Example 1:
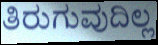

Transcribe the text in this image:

ತಿರುಗುವುದಿಲ್ಲ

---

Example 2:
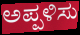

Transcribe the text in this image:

ಅಪ್ಪಳಿಸು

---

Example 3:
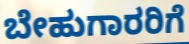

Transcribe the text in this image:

ಬೇಹುಗಾರರಿಗೆ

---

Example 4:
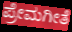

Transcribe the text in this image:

ಪ್ರೇಮಗೀತೆ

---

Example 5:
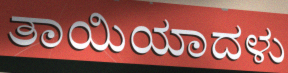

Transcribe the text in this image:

ತಾಯಿಯಾದಳು